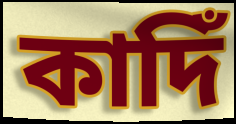
কাদিঁ